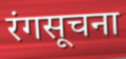
रंगसूचना